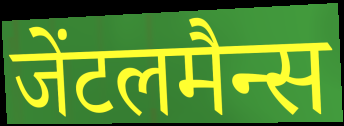
जेंटलमैन्स